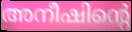
അനീഷിന്റെ